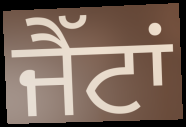
ਜੈੱਟਾਂ